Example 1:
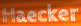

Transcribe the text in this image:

Haecker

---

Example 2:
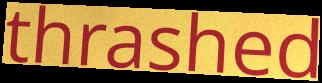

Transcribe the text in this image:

thrashed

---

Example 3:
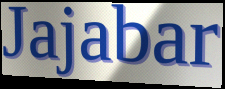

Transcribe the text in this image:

Jajabar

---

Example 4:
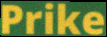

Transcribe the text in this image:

Prike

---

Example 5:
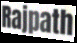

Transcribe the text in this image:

Rajpath